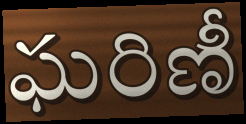
ఘరిణీ